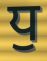
ਧੁ